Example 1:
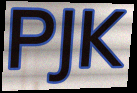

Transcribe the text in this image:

PJK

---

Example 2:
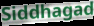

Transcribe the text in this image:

Siddhagad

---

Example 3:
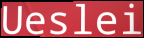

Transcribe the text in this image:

Ueslei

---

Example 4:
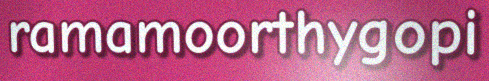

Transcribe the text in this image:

ramamoorthygopi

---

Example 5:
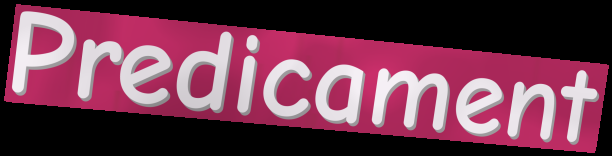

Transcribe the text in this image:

Predicament